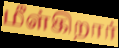
மீள்கிறார்